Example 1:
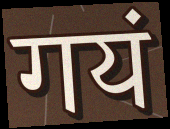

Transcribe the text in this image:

गयं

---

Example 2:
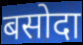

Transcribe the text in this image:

बसोदा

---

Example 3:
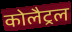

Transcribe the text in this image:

कोलैट्रल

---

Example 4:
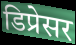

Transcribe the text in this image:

डिप्रेसर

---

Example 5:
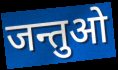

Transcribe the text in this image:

जन्तुओ